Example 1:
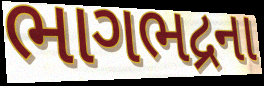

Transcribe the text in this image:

ભાગભદ્રના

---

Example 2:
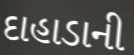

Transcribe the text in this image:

દાહાડાની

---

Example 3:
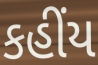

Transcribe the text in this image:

કહીંય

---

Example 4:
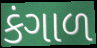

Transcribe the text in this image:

કંગાળ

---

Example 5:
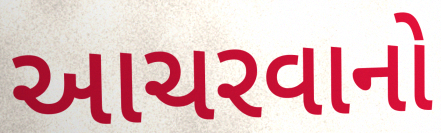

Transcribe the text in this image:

આચરવાનો